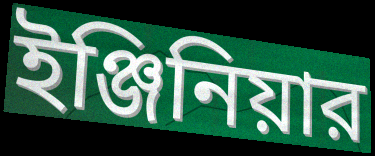
ইঞ্জিনিয়ার